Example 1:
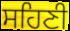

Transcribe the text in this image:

ਸਹਿਣੀ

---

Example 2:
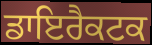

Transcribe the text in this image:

ਡਾਇਰੈਕਟਕ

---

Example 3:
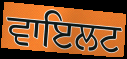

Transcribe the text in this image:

ਵਾਇਲਟ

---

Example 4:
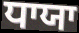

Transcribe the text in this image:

ਧਾਯਾ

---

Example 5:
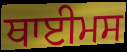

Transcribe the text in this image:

ਥਾਈਮਸ